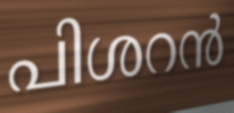
പിശറൻ